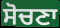
ਸੋਚਣਾ